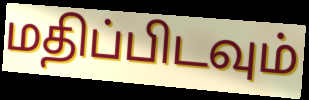
மதிப்பிடவும்